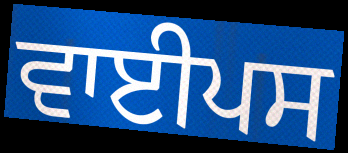
ਵਾਈਪਸ